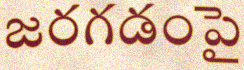
జరగడంపై